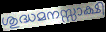
ശുദ്ധമനസ്സാക്ഷി